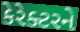
કેરેક્ટરને